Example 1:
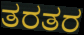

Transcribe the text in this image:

ತರತರ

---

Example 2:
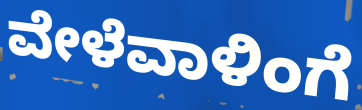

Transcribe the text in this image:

ವೇಳೆವಾಳಿಂಗೆ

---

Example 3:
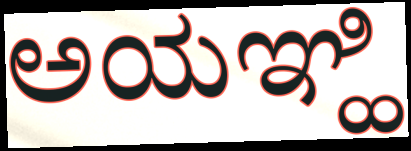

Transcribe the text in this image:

ಅಯಞ್ಹಿ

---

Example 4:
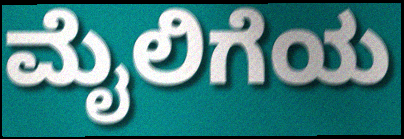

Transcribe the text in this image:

ಮೈಲಿಗೆಯ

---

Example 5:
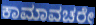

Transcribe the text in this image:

ಕಾಮಾವಚರೇ